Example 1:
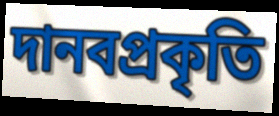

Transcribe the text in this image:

দানবপ্রকৃতি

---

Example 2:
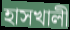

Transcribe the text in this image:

হাসখালী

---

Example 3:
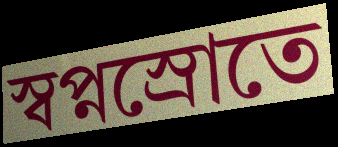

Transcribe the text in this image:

স্বপ্নস্রোতে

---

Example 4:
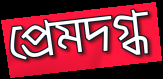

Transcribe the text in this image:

প্রেমদগ্ধ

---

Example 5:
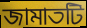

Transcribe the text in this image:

জামাতটি